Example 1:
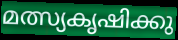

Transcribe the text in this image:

മത്സ്യകൃഷിക്കു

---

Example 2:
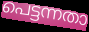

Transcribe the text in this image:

പെട്ടന്നതാ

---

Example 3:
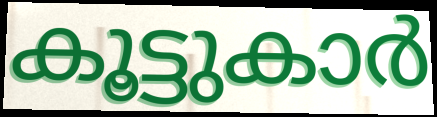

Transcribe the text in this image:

കൂട്ടുകാർ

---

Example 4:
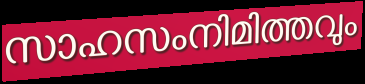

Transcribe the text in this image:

സാഹസംനിമിത്തവും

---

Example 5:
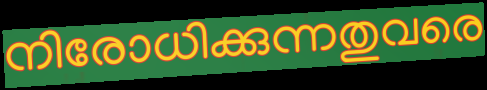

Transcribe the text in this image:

നിരോധിക്കുന്നതുവരെ